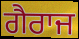
ਗੈਰਾਜ